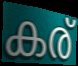
കര്